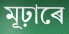
মূঢ়াৰে